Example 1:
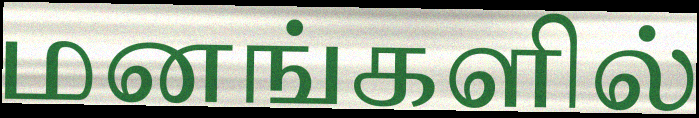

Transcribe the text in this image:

மனங்களில்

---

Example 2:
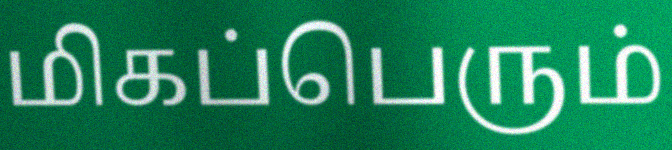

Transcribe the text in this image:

மிகப்பெரும்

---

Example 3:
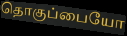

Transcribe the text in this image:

தொகுப்பையோ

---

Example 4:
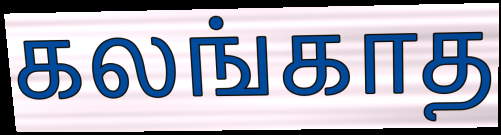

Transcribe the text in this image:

கலங்காத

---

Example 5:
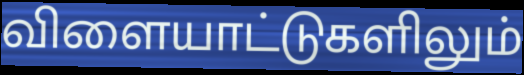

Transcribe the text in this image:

விளையாட்டுகளிலும்